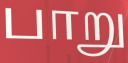
பாறு